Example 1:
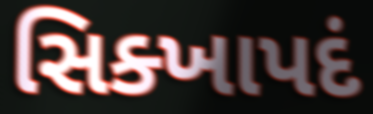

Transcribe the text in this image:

સિક્ખાપદં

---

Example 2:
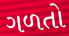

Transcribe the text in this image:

ગળતો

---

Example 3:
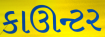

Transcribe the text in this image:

કાઊન્ટર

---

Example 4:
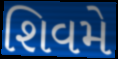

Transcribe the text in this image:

શિવમે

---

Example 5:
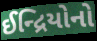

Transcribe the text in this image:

ઈન્દ્રિયોનો